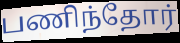
பணிந்தோர்